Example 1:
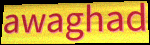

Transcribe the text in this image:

awaghad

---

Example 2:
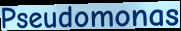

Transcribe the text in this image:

Pseudomonas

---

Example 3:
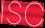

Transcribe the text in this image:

ISC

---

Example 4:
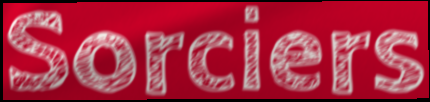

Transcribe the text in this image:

Sorciers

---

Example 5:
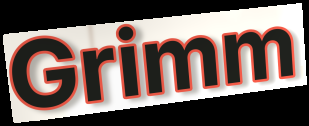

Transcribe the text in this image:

Grimm